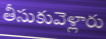
తీసుకువెళ్లారు